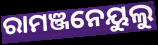
ରାମଞ୍ଜନେୟୁଲୁ